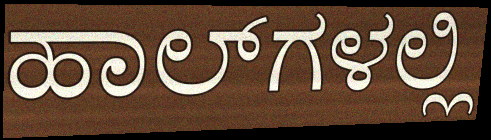
ಹಾಲ್‌ಗಳಲ್ಲಿ